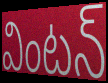
వింటన్